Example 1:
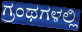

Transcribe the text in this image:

ಗ್ರಂಥಗಳಲ್ಲಿ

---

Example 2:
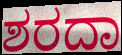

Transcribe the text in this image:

ಶರದಾ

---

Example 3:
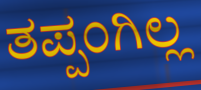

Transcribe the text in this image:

ತಪ್ಪಂಗಿಲ್ಲ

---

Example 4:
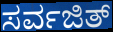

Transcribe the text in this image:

ಸರ್ವಜಿತ್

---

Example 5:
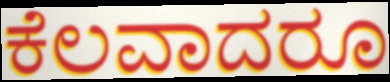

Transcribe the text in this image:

ಕೆಲವಾದರೂ